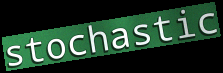
stochastic